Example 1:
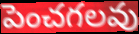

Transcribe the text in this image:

పెంచగలవు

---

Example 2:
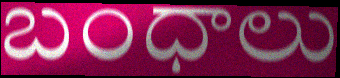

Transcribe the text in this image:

బంధాలు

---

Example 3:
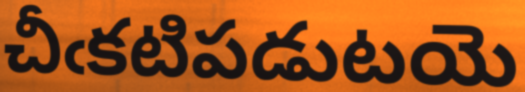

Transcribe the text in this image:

చీఁకటిపడుటయె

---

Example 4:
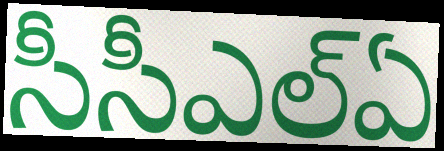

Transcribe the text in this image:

సీసీఎల్ఏ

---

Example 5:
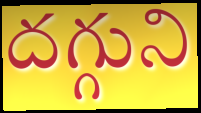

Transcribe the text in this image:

దగ్గుని